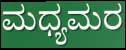
ಮಧ್ಯಮರ